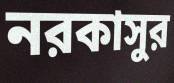
নরকাসুর